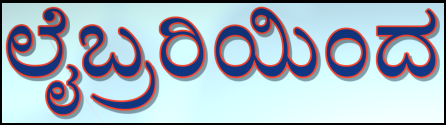
ಲೈಬ್ರರಿಯಿಂದ